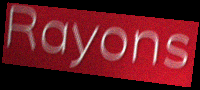
Rayons